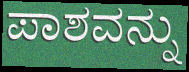
ಪಾಶವನ್ನು